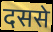
दससे